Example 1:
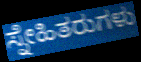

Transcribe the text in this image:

ಸ್ನೇಹಿತರುಗಳು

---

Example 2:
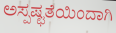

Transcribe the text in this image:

ಅಸ್ಪಷ್ಟತೆಯಿಂದಾಗಿ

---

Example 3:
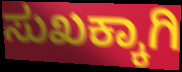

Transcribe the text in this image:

ಸುಖಕ್ಕಾಗಿ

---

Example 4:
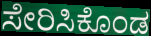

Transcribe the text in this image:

ಸೇರಿಸಿಕೊಂಡ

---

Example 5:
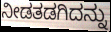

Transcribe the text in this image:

ನೀಡತಡಗಿದನ್ನು